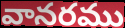
వానరము